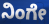
ನಿಂಗೇ